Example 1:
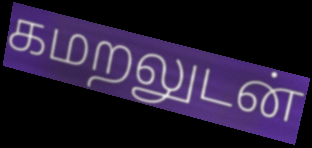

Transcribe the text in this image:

கமறலுடன்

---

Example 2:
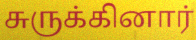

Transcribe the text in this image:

சுருக்கினார்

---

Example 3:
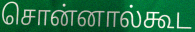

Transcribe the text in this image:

சொன்னால்கூட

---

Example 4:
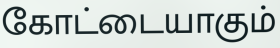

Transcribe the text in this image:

கோட்டையாகும்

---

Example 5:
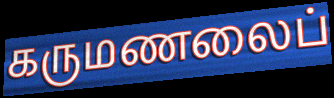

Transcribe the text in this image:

கருமணலைப்